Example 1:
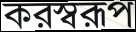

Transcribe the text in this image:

করস্বরূপ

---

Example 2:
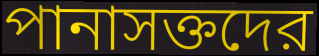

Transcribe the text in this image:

পানাসক্তদের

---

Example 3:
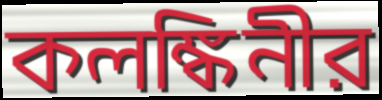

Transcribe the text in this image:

কলঙ্কিনীর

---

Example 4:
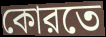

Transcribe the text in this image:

কোরতে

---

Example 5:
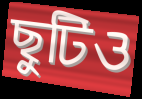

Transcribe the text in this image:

ছুটিও